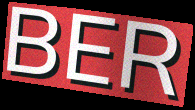
BER